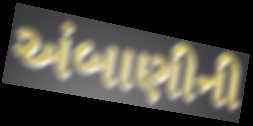
અંબાણીની